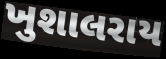
ખુશાલરાય